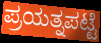
ಪ್ರಯತ್ನಪಟ್ಟೆ